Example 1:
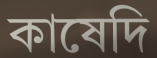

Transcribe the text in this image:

কাষেদি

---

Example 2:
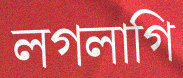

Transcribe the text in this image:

লগলাগি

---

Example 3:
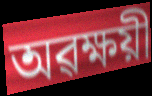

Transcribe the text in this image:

অৱক্ষয়ী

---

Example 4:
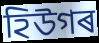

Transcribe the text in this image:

হিউগৰ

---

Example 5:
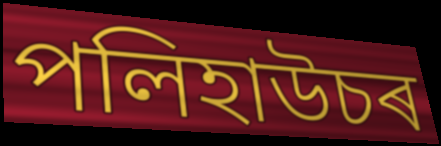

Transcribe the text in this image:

পলিহাউচৰ